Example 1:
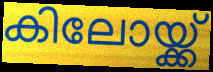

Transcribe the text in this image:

കിലോയ്ക്ക്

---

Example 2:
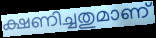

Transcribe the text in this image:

ക്ഷണിച്ചതുമാണ്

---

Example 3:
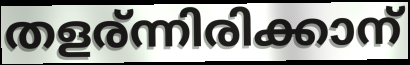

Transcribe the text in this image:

തളര്ന്നിരിക്കാന്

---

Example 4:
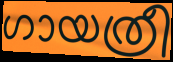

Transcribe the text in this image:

ഗായത്രീ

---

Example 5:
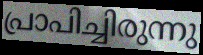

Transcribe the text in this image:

പ്രാപിച്ചിരുന്നു